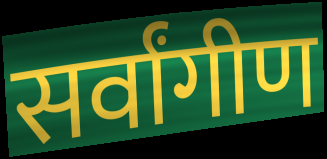
सर्वांगीण